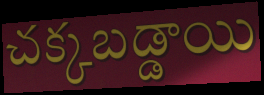
చక్కబడ్డాయి